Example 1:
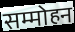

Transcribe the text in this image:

सम्मोहन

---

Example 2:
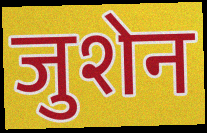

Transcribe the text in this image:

जुशेन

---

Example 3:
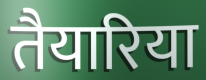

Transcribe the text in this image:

तैयारिया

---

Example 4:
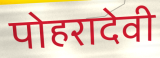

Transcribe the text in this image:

पोहरादेवी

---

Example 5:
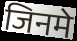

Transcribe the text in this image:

जिनमे